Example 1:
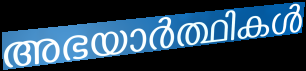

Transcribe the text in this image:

അഭയാർത്ഥികൾ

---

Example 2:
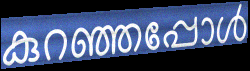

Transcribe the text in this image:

കുറഞ്ഞപ്പോൾ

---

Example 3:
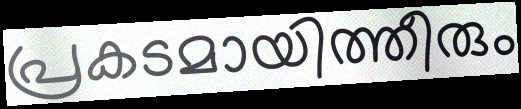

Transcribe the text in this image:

പ്രകടമായിത്തീരും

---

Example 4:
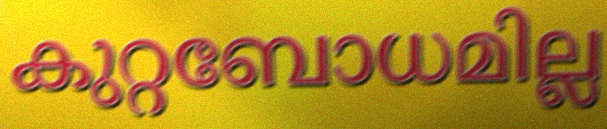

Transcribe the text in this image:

കുറ്റബോധമില്ല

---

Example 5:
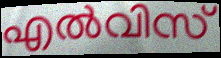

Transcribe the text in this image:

എൽവിസ്